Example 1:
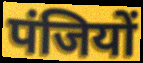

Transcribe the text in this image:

पंजियों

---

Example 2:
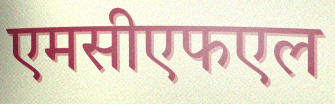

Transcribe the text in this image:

एमसीएफएल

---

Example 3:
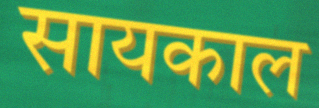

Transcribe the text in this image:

सायकाल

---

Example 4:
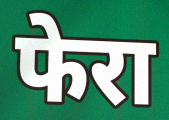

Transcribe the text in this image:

फेरा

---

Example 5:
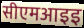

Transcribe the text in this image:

सीएमआइइ